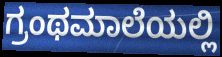
ಗ್ರಂಥಮಾಲೆಯಲ್ಲಿ